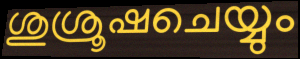
ശുശ്രൂഷചെയ്യും